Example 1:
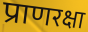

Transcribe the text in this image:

प्राणरक्षा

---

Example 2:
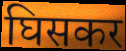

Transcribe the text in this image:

घिसकर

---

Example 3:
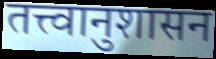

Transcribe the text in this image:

तत्त्वानुशासन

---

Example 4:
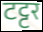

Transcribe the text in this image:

टट्टर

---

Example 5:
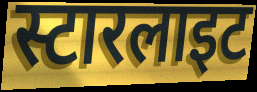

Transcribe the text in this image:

स्टारलाइट